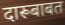
दारूबाबत